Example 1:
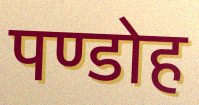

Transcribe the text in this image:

पण्डोह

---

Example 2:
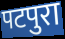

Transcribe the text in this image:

पटपुरा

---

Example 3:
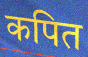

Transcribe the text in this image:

कपित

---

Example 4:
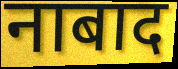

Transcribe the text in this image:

नाबाद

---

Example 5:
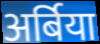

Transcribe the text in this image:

अर्बिया